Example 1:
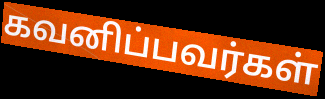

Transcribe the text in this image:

கவனிப்பவர்கள்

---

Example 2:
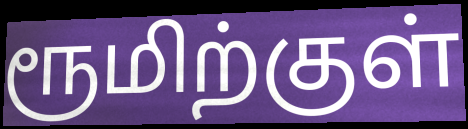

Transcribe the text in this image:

ரூமிற்குள்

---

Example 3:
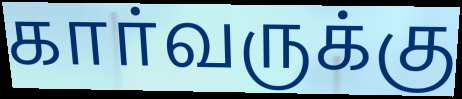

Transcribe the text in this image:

கார்வருக்கு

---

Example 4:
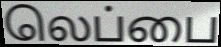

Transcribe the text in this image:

லெப்பை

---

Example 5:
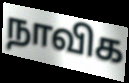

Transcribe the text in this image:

நாவிக